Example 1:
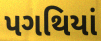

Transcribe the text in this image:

પગથિયાં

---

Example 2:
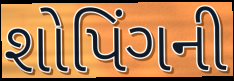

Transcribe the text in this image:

શોપિંગની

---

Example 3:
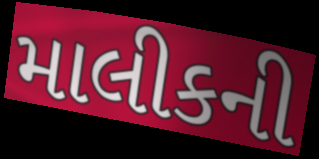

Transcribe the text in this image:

માલીકની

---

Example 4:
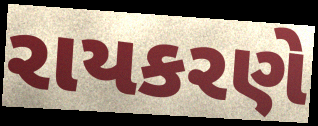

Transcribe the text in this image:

રાયકરણે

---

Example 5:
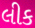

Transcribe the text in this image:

લીક